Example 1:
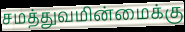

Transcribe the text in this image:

சமத்துவமின்மைக்கு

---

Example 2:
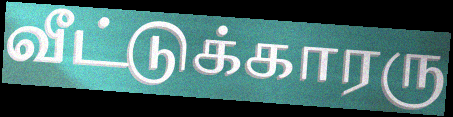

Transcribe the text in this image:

வீட்டுக்காரரு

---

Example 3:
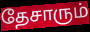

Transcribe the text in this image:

தேசாரும்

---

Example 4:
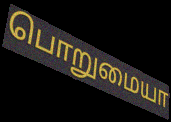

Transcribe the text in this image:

பொறுமையா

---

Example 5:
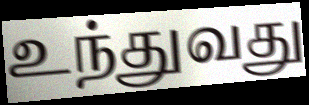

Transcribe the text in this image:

உந்துவது